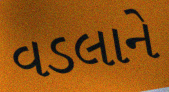
વડલાને